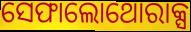
ସେଫାଲୋଥୋରାକ୍ସ